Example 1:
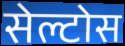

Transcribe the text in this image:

सेल्टोस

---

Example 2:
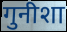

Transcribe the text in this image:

गुनीशा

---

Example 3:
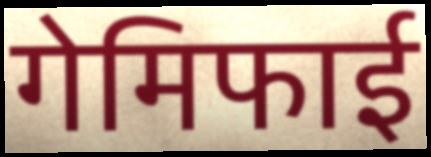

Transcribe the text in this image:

गेमिफाई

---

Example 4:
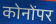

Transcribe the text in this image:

कोनोंपर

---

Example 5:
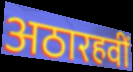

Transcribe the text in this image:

अठारहवीं